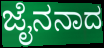
ಜೈನನಾದ